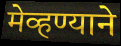
मेव्हण्याने